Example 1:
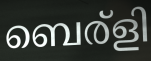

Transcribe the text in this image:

ബെര്ളി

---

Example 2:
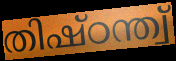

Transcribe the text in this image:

തിഷ്ഠന്ത്വ്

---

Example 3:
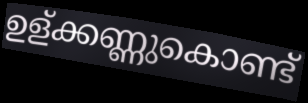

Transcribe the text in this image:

ഉള്ക്കണ്ണുകൊണ്ട്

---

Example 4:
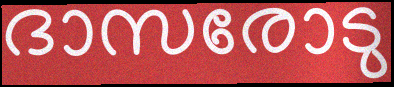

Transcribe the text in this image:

ദാസരോടു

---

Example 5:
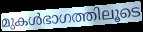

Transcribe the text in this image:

മുകൾഭാഗത്തിലൂടെ